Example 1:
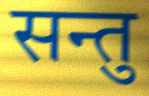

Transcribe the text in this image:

सन्‍तु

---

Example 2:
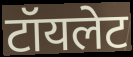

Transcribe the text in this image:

टॉयलेट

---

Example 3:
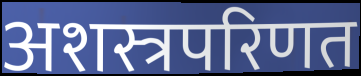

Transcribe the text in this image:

अशस्त्रपरिणत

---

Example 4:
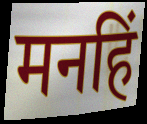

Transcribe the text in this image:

मनहिं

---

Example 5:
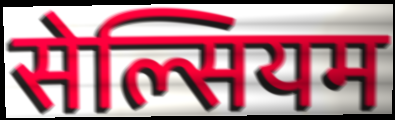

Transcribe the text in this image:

सेल्सियम